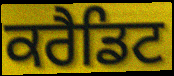
ਕਰੈਡਿਟ